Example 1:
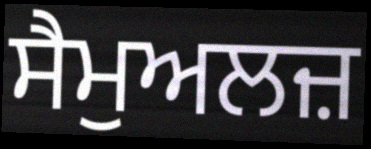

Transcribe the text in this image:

ਸੈਮੁਅਲਜ਼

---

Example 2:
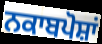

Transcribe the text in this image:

ਨਕਾਬਪੋਸ਼ਾਂ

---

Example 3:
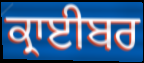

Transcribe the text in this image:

ਕ੍ਰਾਈਬਰ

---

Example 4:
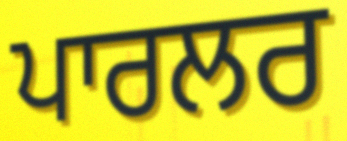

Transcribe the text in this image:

ਪਾਰਲਰ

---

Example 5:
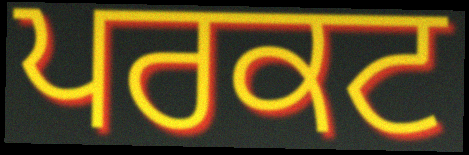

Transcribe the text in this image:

ਪਰਕਟ